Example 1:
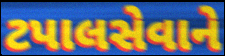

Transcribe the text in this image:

ટપાલસેવાને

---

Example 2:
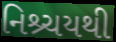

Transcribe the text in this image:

નિશ્ર્ચયથી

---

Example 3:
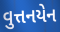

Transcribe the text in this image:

વુત્તનયેન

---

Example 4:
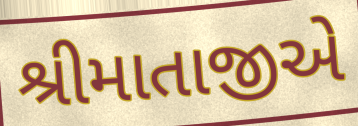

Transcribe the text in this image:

શ્રીમાતાજીએ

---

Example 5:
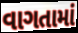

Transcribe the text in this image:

વાગતામાં